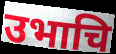
उभाचि